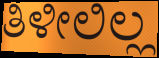
ತಿಳೀಲಿಲ್ಲ